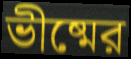
ভীষ্মের